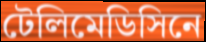
টেলিমেডিসিনে